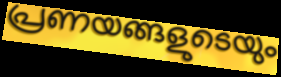
പ്രണയങ്ങളുടെയും